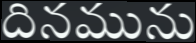
దినమును